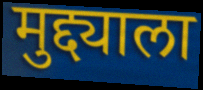
मुद्द्याला